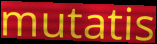
mutatis